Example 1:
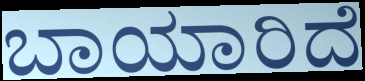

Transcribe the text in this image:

ಬಾಯಾರಿದೆ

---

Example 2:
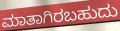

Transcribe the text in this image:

ಮಾತಾಗಿರಬಹುದು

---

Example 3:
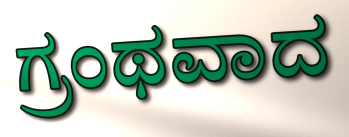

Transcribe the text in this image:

ಗ್ರಂಥವಾದ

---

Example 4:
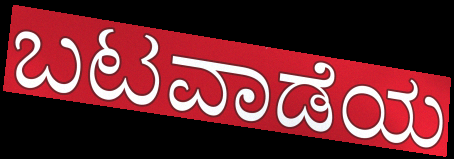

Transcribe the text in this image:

ಬಟವಾಡೆಯ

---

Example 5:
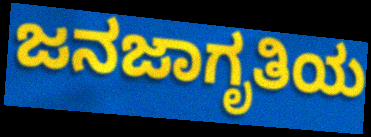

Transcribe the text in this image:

ಜನಜಾಗೃತಿಯ